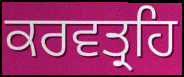
ਕਰਵਤ੍ਰਹਿ